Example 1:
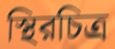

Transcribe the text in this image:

স্থিরচিত্র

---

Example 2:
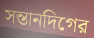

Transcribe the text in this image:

সন্তানদিগের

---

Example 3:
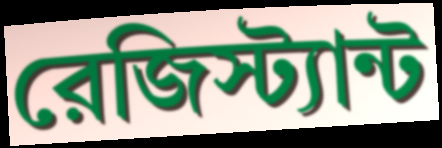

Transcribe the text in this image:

রেজিস্ট্যান্ট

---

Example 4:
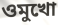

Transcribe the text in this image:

ওমুখো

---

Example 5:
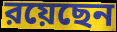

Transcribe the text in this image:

রয়েছেন